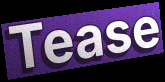
Tease